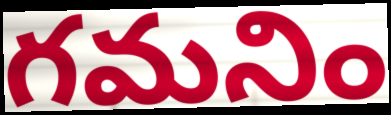
గమనిం